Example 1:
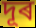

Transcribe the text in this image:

দূৰ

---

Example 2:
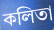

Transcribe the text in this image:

কলিতা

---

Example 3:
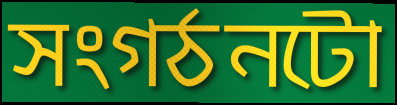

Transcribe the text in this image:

সংগঠনটো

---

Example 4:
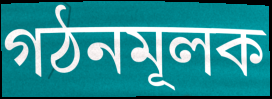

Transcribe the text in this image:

গঠনমূলক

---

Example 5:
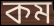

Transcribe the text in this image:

কম